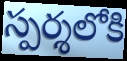
స్పర్శలోకి